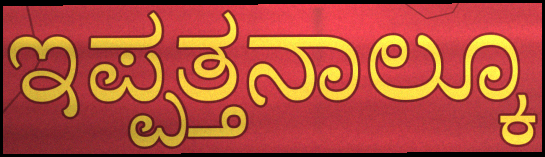
ಇಪ್ಪತ್ತನಾಲ್ಕೂ